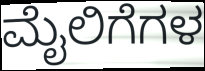
ಮೈಲಿಗೆಗಳ